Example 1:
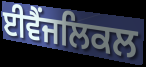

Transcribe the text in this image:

ਈਵੈਂਜਲਿਕਲ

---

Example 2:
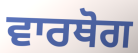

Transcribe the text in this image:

ਵਾਰਥੋਗ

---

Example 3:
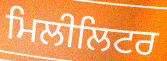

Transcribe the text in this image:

ਮਿਲੀਲਿਟਰ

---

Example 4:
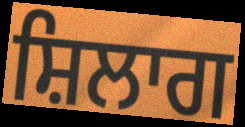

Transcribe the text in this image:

ਸ਼ਿਲਾਗ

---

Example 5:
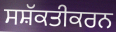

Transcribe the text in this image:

ਸਸ਼ੱਕਤੀਕਰਨ